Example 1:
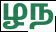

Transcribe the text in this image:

ழந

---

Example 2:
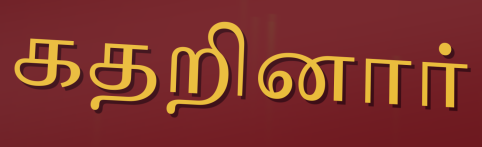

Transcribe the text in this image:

கதறினார்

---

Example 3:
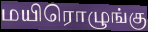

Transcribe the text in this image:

மயிரொழுங்கு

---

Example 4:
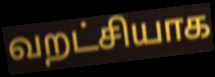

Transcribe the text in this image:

வறட்சியாக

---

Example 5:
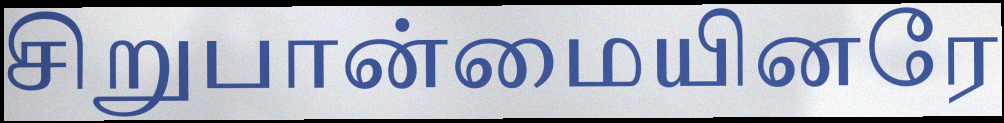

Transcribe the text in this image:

சிறுபான்மையினரே